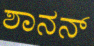
ಶಾನನ್